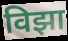
विझा